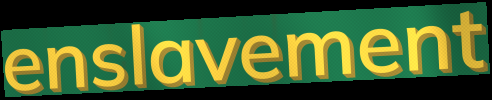
enslavement